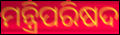
ମନ୍ତ୍ରିପରିଷଦ